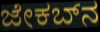
ಜೇಕಬ್‌ನ